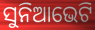
ସୁନିଆଭେଟି